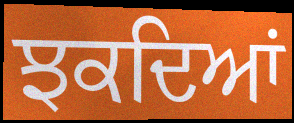
ਝਕਦਿਆਂ